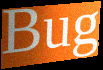
Bug